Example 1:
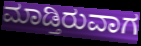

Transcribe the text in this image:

ಮಾಡ್ತಿರುವಾಗ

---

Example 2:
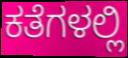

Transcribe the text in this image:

ಕತೆಗಳಲ್ಲಿ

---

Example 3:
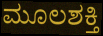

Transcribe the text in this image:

ಮೂಲಶಕ್ತಿ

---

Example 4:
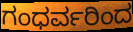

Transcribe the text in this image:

ಗಂಧರ್ವರಿಂದ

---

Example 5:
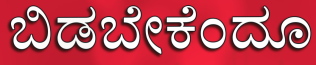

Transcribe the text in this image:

ಬಿಡಬೇಕೆಂದೂ